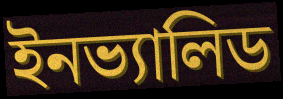
ইনভ্যালিড